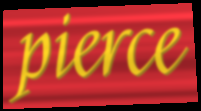
pierce